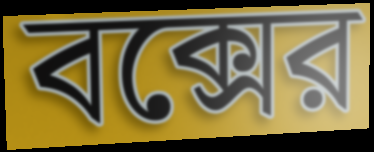
বক্সের